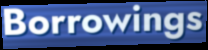
Borrowings